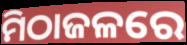
ମିଠାଜଳରେ